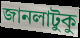
জানলাটুকু